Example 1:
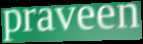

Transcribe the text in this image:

praveen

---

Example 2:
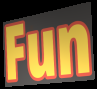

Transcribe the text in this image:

Fun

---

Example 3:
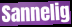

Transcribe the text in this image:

Sannelig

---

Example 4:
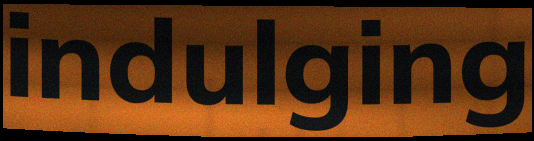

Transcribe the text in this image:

indulging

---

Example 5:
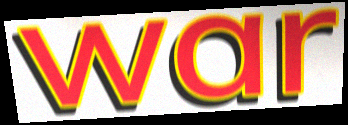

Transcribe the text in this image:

war